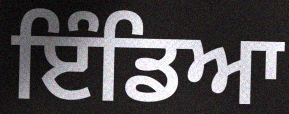
ਇੰਡਿਆ